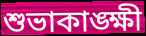
শুভাকাঙ্ক্ষী